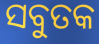
ସବୁତକ